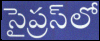
సైప్రస్‌లో